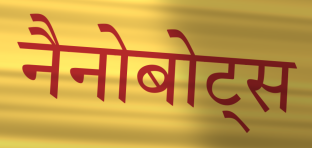
नैनोबोट्स